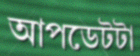
আপডেটটা